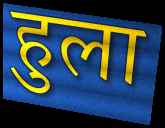
हुला